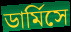
ডার্মিসে